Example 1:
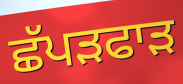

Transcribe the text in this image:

ਛੱਪੜਫਾੜ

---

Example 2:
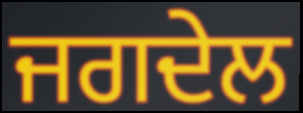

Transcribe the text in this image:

ਜਗਦੇਲ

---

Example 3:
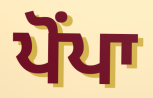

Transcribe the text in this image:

ਪੋਂਪਾ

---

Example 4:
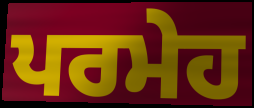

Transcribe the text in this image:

ਪਰਮੇਹ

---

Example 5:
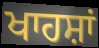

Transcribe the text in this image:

ਖਾਹਸ਼ਾਂ